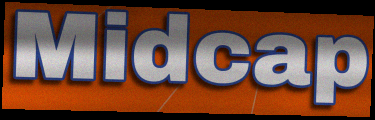
Midcap